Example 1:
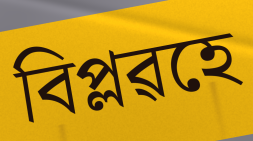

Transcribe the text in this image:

বিপ্লৱহে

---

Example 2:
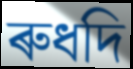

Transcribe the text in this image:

ৰুধদি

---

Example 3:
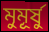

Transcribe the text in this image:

মুমূৰ্ষু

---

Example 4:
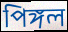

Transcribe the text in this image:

পিঙ্গল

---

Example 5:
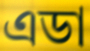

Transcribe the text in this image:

এডা